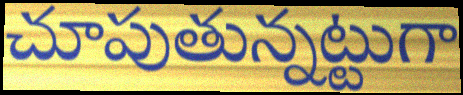
చూపుతున్నట్టుగా